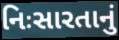
નિઃસારતાનું